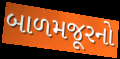
બાળમજૂરનો